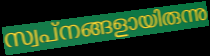
സ്വപ്‌നങ്ങളായിരുന്നു